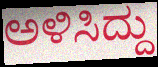
ಅಳಿಸಿದ್ದು